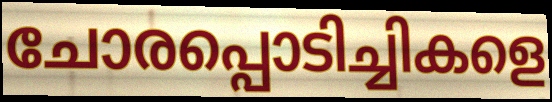
ചോരപ്പൊടിച്ചികളെ